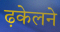
ढ़केलने